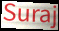
Suraj